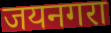
जयनगरा